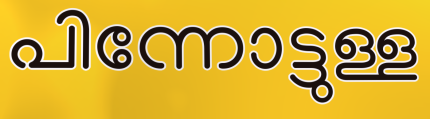
പിന്നോട്ടുള്ള